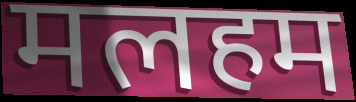
मलहम